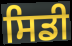
ਸਿਡੀ